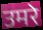
उमरे